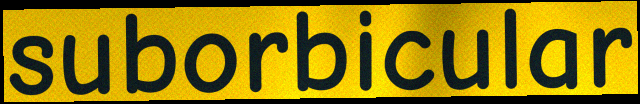
suborbicular